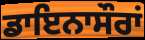
ਡਾਇਨਾਸੌਰਾਂ